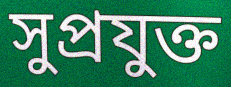
সুপ্রযুক্ত